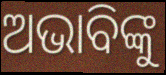
ଅଭାବିଙ୍କୁ